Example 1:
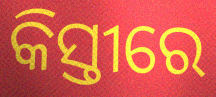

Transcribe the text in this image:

କିସ୍ତୀରେ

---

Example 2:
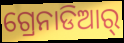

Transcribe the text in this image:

ଗ୍ରେନାଡିଆର୍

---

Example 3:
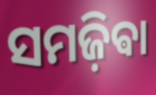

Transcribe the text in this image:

ସମଜ଼ିଵା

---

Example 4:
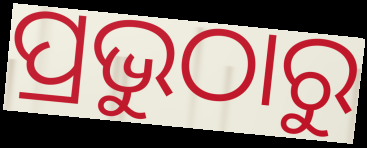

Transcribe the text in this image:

ପ୍ରଭୁଠାରୁ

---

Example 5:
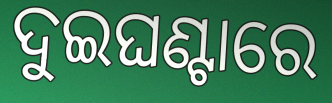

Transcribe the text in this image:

ଦୁଇଘଣ୍ଟାରେ